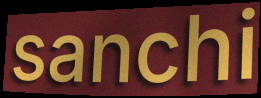
sanchi